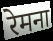
रेमना